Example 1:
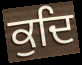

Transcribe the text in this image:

ਕੁਦਿ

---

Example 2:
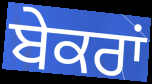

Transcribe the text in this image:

ਬੇਕਰਾਂ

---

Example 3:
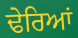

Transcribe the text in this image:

ਢੇਰਿਆਂ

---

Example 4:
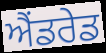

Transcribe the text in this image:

ਐਂਡਰੇਡ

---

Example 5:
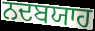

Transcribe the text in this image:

ਨਦਬਯਾਹ